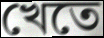
খেতে